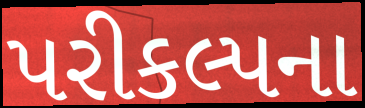
પરીકલ્પના